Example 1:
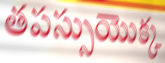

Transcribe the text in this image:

తపస్సుయొక్క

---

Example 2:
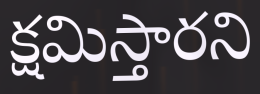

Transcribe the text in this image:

క్షమిస్తారని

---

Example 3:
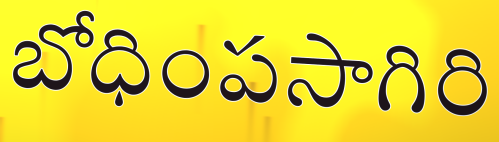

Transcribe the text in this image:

బోధింపసాగిరి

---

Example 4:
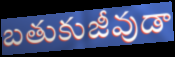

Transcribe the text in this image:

బతుకుజీవుడా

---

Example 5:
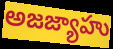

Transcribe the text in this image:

అజజ్యాహు